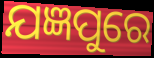
ଯଜ୍ଞପୁରେ